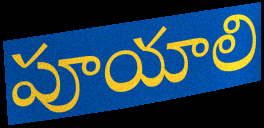
పూయాలి